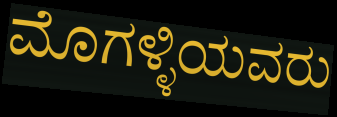
ಮೊಗಳ್ಳಿಯವರು